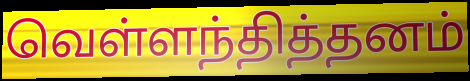
வெள்ளந்தித்தனம்